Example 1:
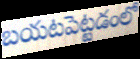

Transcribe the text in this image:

బయటపెట్టడంలో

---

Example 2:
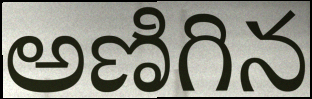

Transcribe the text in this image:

అణిగిన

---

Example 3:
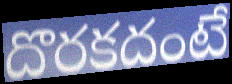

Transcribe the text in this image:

దొరకదంటే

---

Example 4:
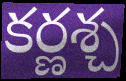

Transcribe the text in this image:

కర్ణశ్చ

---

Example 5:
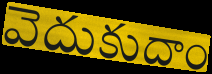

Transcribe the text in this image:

వెదుకుదాం